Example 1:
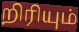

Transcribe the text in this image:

றிரியும்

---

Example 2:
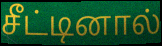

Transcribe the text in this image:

சீட்டினால்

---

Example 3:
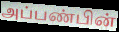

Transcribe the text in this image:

அப்பண்பின்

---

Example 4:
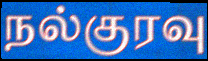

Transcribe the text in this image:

நல்குரவு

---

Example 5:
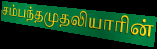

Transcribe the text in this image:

சம்பந்தமுதலியாரின்